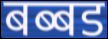
बब्बड